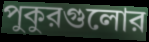
পুকুরগুলোর